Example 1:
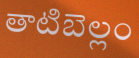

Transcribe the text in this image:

తాటిబెల్లం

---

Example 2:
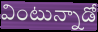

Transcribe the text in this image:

వింటున్నాడో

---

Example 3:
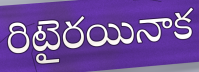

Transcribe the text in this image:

రిటైరయినాక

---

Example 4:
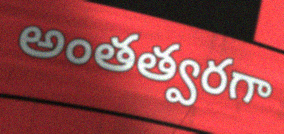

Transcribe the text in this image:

అంతత్వరగా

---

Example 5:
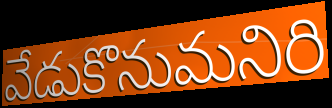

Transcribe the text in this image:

వేడుకొనుమనిరి